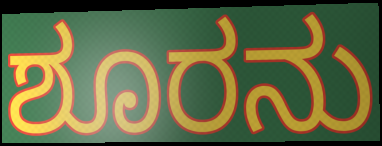
ಶೂರನು